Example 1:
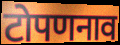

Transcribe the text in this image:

टोपणनाव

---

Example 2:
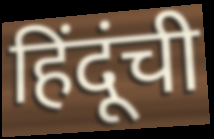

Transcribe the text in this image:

हिंदूंची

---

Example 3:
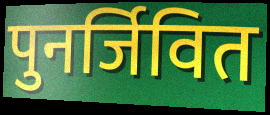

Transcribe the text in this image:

पुनर्जिवित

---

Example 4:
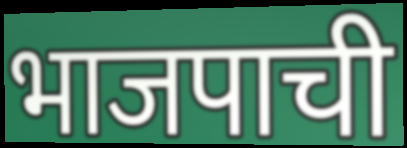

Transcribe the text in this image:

भाजपाची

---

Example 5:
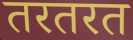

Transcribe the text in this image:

तरतरत